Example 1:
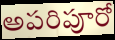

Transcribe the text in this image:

అపరిపూరో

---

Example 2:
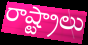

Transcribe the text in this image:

రాష్ట్రాలు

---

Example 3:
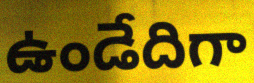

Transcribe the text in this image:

ఉండేదిగా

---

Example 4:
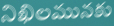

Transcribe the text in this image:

నిఖిలమునకు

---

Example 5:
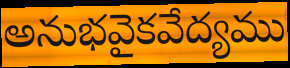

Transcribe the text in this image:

అనుభవైకవేద్యము